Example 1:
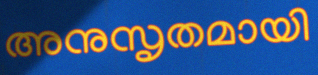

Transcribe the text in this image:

അനുസൃതമായി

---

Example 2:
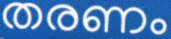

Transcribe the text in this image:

തരണം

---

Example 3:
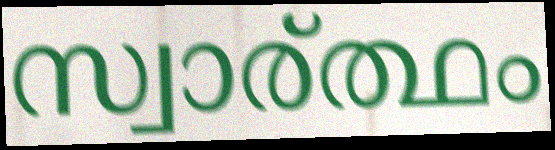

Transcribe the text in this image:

സ്വാര്ത്ഥം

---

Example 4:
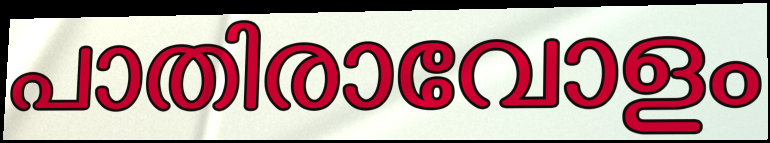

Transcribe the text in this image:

പാതിരാവോളം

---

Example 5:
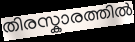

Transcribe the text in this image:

തിരസ്കാരത്തിൽ